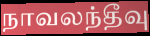
நாவலந்தீவு